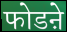
फोडऩे